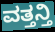
ವತ್ತನ್ತಿ